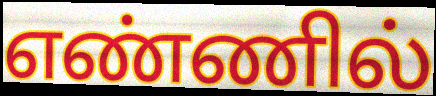
எண்ணில்